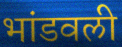
भांडवली